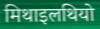
मिथाइलथियो